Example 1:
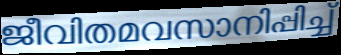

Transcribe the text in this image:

ജീവിതമവസാനിപ്പിച്ച്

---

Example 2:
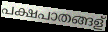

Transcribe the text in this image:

പക്ഷപാതങ്ങള്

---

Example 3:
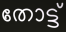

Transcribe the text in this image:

തോട്ട്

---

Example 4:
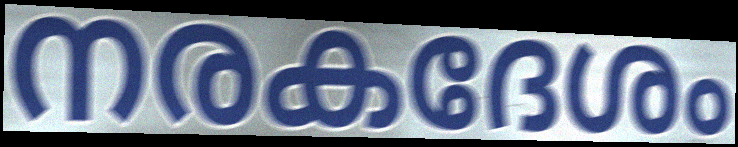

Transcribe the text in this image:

നരകദേശം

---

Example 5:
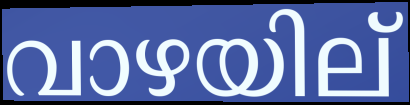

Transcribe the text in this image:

വാഴയില്